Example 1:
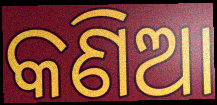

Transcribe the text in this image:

କଣିଆ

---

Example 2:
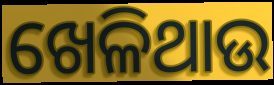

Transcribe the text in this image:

ଖେଳିଥାଉ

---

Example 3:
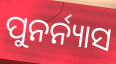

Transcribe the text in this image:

ପୁନର୍ନ୍ୟାସ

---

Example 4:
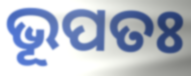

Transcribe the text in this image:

ଭୂପତଃ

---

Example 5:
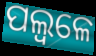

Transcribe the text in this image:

ପଲ୍ୱଳେ